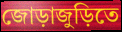
জোড়াজুড়িতে